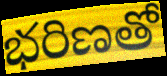
భరిణతో